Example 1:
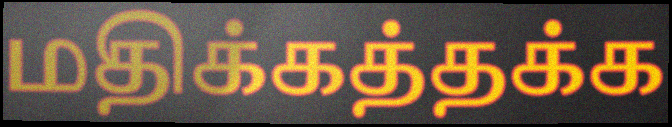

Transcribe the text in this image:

மதிக்கத்தக்க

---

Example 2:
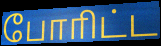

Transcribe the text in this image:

போரிட்ட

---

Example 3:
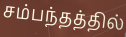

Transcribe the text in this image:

சம்பந்தத்தில்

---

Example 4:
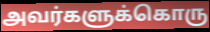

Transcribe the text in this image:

அவர்களுக்கொரு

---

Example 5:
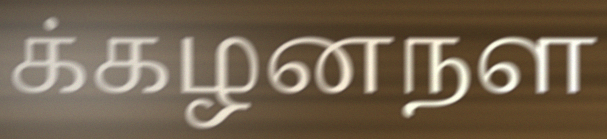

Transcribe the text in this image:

க்கழனநள